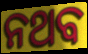
ନଥବ